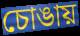
চোঙায়